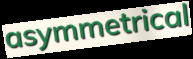
asymmetrical